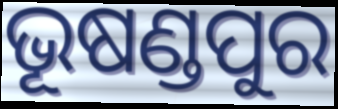
ଭୂଷଣ୍ଡପୁର